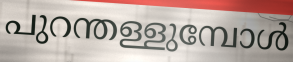
പുറന്തള്ളുമ്പോൾ